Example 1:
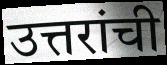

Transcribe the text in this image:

उत्तरांची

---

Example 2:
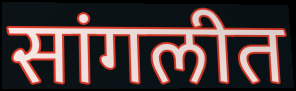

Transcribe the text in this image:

सांगलीत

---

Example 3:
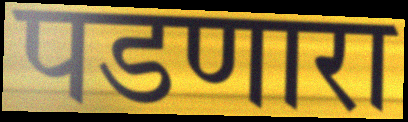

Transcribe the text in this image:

पडणारा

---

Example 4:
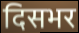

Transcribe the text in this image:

दिसभर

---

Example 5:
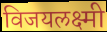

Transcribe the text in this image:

विजयलक्ष्मी